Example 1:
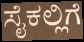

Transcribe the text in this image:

ಸೈಕಲ್ಲಿಗೆ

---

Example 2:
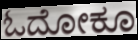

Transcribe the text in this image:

ಓದೋಕೂ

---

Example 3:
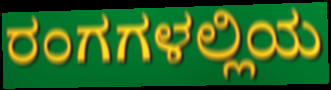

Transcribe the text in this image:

ರಂಗಗಳಲ್ಲಿಯ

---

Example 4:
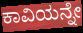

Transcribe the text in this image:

ಕಾವಿಯನ್ನೇ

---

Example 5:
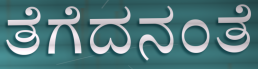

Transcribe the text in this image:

ತೆಗೆದನಂತೆ